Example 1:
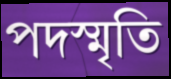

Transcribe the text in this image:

পদস্মৃতি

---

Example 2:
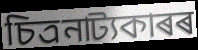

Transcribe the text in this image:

চিত্ৰনাট্যকাৰৰ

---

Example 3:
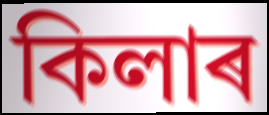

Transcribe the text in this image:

কিলাৰ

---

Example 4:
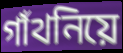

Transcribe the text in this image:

গাঁথনিয়ে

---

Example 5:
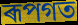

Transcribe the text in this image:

ৰূপগত